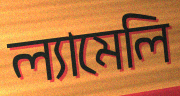
ল্যামেলি